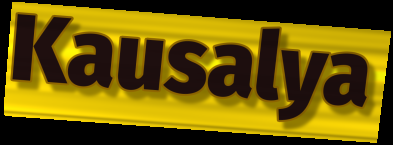
Kausalya